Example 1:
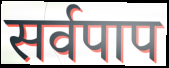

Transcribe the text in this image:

सर्वपाप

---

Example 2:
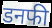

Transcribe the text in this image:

डनफी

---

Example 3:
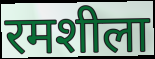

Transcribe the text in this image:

रमशीला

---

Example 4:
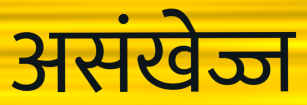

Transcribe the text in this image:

असंखेज्ज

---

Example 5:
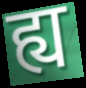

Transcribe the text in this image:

ह्य